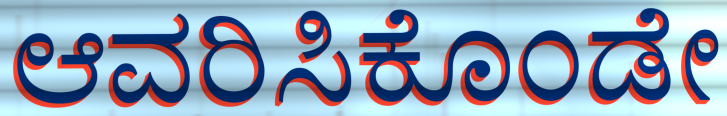
ಆವರಿಸಿಕೊಂಡೇ